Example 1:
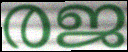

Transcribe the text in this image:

രജ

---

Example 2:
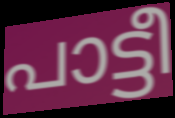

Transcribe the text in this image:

പാട്ടീ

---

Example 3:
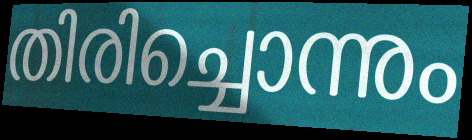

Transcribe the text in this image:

തിരിച്ചൊന്നും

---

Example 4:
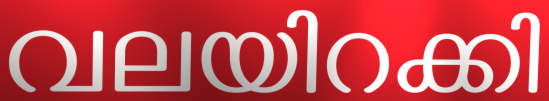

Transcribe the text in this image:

വലയിറക്കി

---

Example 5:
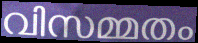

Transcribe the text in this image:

വിസമ്മതം